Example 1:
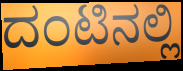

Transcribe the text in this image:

ದಂಟಿನಲ್ಲಿ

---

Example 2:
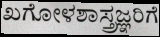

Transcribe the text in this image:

ಖಗೋಳಶಾಸ್ತ್ರಜ್ಞರಿಗೆ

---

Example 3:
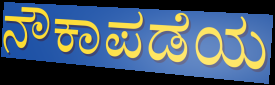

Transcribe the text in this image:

ನೌಕಾಪಡೆಯ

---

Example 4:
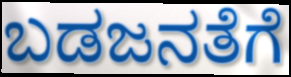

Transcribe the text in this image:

ಬಡಜನತೆಗೆ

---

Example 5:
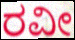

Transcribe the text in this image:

ರವೀ